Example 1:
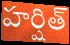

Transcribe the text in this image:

హర్షిత్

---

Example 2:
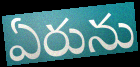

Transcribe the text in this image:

ఏరును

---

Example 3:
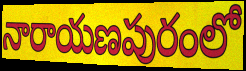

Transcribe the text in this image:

నారాయణపురంలో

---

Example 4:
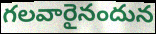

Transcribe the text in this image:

గలవారైనందున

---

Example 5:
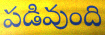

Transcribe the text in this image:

పడివుంది